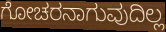
ಗೋಚರನಾಗುವುದಿಲ್ಲ